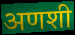
अणशी